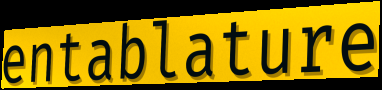
entablature